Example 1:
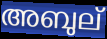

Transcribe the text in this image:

അബുല്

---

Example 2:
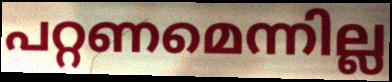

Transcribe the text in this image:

പറ്റണമെന്നില്ല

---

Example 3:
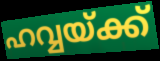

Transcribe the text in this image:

ഹവ്വയ്ക്ക്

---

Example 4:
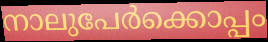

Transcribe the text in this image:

നാലുപേർക്കൊപ്പം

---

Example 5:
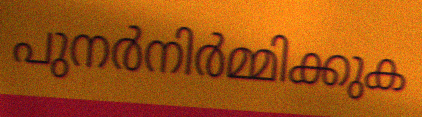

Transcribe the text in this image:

പുനർനിർമ്മിക്കുക